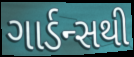
ગાર્ડન્સથી